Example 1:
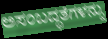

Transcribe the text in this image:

ಅಸಂಬದ್ಧತೆಗಳನ್ನು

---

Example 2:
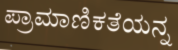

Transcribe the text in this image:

ಪ್ರಾಮಾಣಿಕತೆಯನ್ನ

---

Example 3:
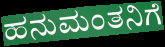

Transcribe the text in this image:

ಹನುಮಂತನಿಗೆ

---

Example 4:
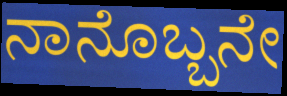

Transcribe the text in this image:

ನಾನೊಬ್ಬನೇ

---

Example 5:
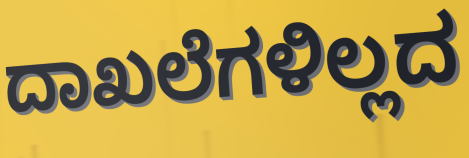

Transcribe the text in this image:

ದಾಖಲೆಗಳಿಲ್ಲದ